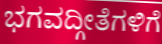
ಭಗವದ್ಗೀತೆಗಳಿಗೆ